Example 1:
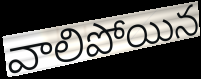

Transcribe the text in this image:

వాలిపోయిన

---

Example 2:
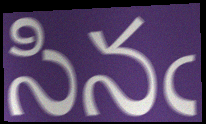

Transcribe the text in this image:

సినఁ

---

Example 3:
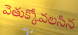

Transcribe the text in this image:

వెతుక్కోవలసిన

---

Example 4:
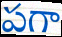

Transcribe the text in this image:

పగా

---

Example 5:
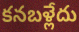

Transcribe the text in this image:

కనబళ్లేదు